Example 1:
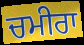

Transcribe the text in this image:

ਚਮੀਰਾ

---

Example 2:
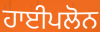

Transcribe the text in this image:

ਹਾਈਪਲੋਨ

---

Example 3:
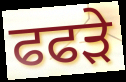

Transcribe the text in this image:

ਫਫੜੇ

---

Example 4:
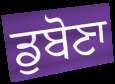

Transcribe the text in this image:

ਡੁਬੋਣਾ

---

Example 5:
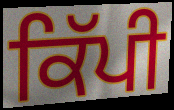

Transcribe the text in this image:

ਕਿੱਪੀ